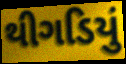
થીગડિયું